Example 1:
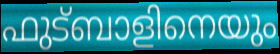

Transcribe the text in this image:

ഫുട്ബാളിനെയും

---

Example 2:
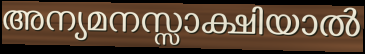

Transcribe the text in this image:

അന്യമനസ്സാക്ഷിയാൽ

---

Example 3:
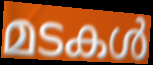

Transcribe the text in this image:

മടകൾ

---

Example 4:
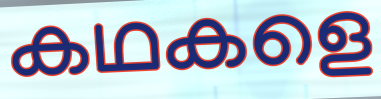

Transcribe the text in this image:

കഥകളെ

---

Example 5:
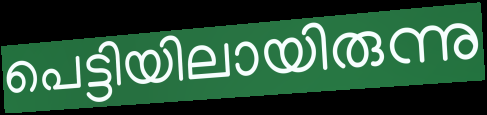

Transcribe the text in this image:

പെട്ടിയിലായിരുന്നു